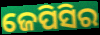
ଜେପିସିର